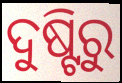
ଦୁଷ୍ଟିରୁ